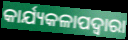
କାର୍ଯ୍ୟକଳାପଦ୍ବାରା